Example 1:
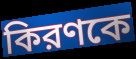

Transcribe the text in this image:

কিরণকে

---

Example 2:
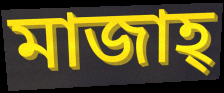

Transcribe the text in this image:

মাজাহ্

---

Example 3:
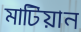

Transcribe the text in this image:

মাটিয়ান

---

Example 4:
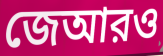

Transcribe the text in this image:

জেআরও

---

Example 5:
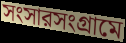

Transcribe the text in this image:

সংসারসংগ্রামে